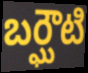
బర్ఘౌటి